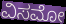
ವಿಸಮೋ